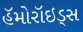
હૅમોરૉઇડ્સ